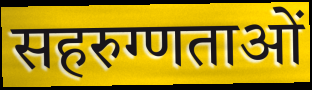
सहरुग्णताओं